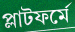
প্লাটফর্মে